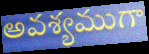
అవశ్యముగా